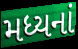
મધ્યનાં